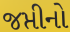
જપ્તીનો